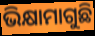
ଭିକ୍ଷାମାଗୁଛି